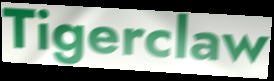
Tigerclaw